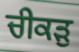
ਚੀਕੜੁ